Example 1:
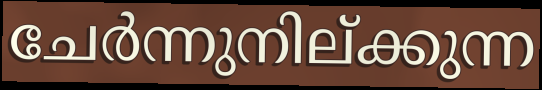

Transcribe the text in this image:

ചേർന്നുനില്ക്കുന്ന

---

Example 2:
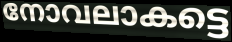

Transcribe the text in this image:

നോവലാകട്ടെ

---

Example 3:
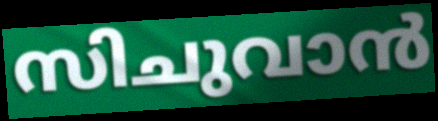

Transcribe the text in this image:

സിചുവാൻ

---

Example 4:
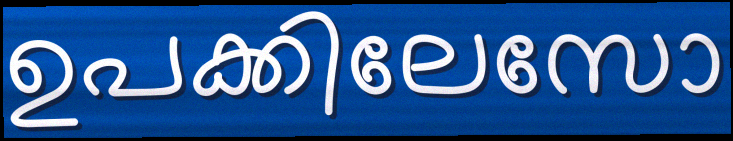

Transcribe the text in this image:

ഉപക്കിലേസോ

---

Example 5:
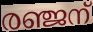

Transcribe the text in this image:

രഞ്ജന്